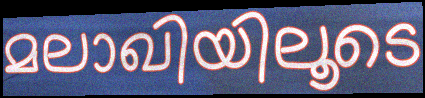
മലാഖിയിലൂടെ